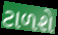
ટાળશે